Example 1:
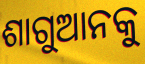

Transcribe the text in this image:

ଶାଗୁଆନକୁ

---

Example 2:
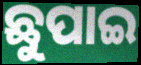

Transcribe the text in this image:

ଛୁପାଇ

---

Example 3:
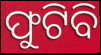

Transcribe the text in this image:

ଫୁଟିବି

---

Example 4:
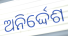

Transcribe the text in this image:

ଅନିର୍ଦ୍ଦେଶ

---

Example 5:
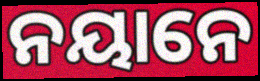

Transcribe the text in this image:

ନୟାନେ